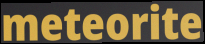
meteorite